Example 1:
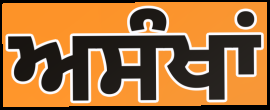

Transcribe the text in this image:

ਅਸੰਖਾਂ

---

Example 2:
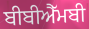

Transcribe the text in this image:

ਬੀਬੀਐੱਮਬੀ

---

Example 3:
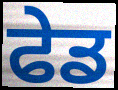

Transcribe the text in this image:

ਫੇਡ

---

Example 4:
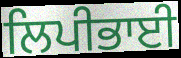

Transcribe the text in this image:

ਲਿਪੀਭਾਈ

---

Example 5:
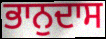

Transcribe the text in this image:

ਭਾਨੁਦਾਸ